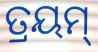
ତ୍ରୟମ୍